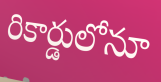
రికార్డులోనూ